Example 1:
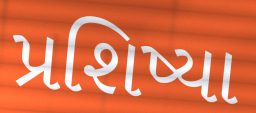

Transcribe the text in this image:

પ્રશિષ્યા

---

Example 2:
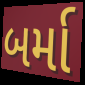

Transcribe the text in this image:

બર્મા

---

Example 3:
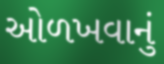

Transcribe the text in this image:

ઓળખવાનું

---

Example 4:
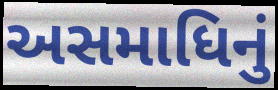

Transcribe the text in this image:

અસમાધિનું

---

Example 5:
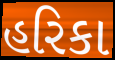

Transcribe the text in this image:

હરિકા